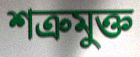
শত্রুমুক্ত